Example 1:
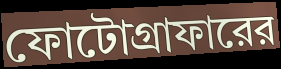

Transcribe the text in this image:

ফোটোগ্রাফারের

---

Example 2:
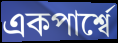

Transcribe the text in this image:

একপার্শ্বে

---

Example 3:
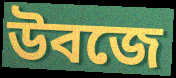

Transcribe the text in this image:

উবজে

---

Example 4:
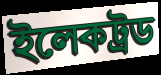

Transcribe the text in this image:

ইলেকট্রড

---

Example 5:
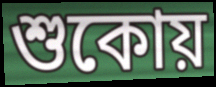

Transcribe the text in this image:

শুকোয়